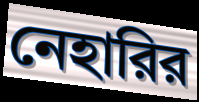
নেহারির